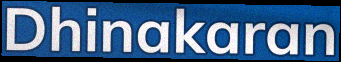
Dhinakaran